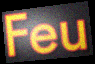
Feu